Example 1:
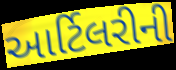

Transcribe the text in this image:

આર્ટિલરીની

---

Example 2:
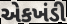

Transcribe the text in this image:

એકખંડી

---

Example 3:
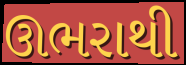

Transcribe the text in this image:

ઊભરાથી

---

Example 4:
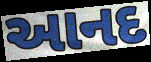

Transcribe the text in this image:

આનદ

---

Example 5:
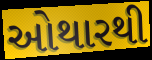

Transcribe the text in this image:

ઓથારથી